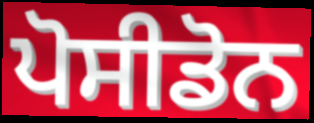
ਪੋਸੀਡੋਨ